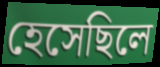
হেসেছিলে